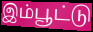
இம்பூட்டு